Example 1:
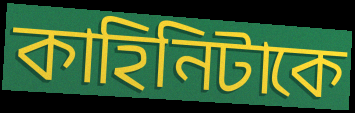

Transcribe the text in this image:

কাহিনিটাকে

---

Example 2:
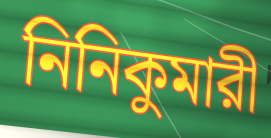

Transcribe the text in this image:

নিনিকুমারী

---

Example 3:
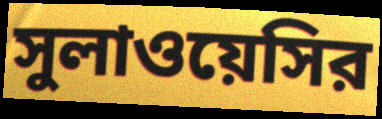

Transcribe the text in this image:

সুলাওয়েসির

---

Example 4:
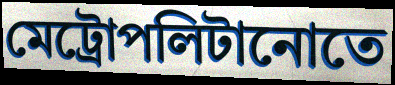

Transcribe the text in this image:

মেট্রোপলিটানোতে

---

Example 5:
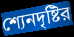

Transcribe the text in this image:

শ্যেনদৃষ্টির